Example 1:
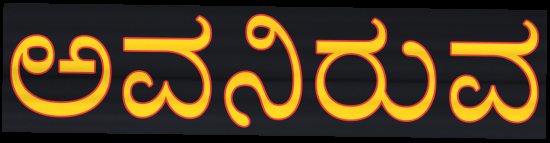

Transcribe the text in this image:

ಅವನಿರುವ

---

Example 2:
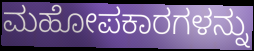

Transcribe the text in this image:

ಮಹೋಪಕಾರಗಳನ್ನು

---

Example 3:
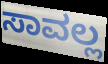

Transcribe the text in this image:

ಸಾವಲ್ಲ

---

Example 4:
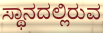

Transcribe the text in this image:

ಸ್ಥಾನದಲ್ಲಿರುವ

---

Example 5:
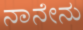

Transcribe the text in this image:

ನಾನೇನು